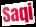
Saqi